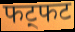
फट्फट